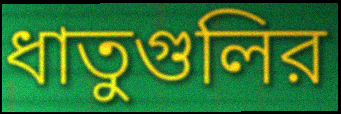
ধাতুগুলির